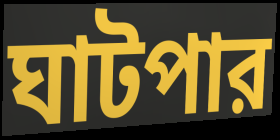
ঘাটপার